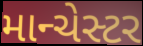
માન્ચેસ્ટર